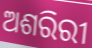
ଅଶରିରୀ